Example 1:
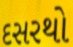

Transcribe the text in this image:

દસરથો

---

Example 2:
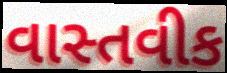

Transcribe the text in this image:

વાસ્તવીક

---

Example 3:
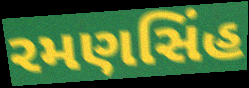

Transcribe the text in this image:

રમણસિંહ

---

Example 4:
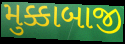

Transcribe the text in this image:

મુક્કાબાજી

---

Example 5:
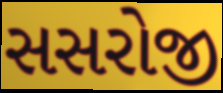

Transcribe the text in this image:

સસરોજી